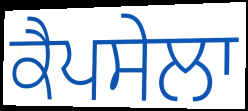
ਕੈਪਸੇਲਾ